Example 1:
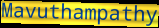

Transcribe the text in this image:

Mavuthampathy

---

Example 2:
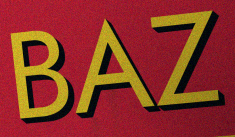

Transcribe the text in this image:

BAZ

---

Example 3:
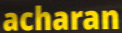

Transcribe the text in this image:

acharan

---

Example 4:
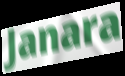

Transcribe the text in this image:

Janara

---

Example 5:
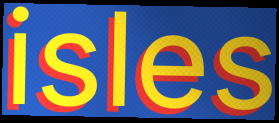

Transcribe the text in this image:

isles